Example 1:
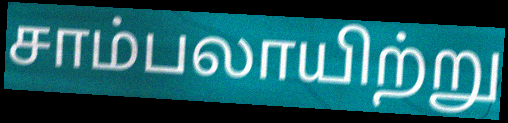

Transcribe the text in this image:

சாம்பலாயிற்று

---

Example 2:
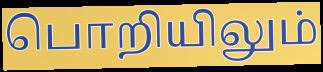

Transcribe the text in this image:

பொறியிலும்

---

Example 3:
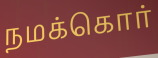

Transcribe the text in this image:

நமக்கொர்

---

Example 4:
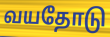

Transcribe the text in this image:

வயதோடு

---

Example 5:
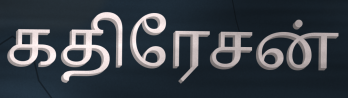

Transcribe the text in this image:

கதிரேசன்